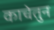
काचेतुन